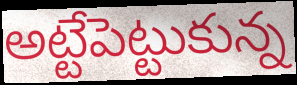
అట్టేపెట్టుకున్న